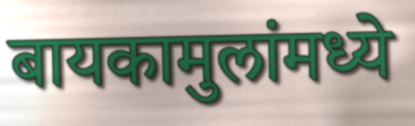
बायकामुलांमध्ये